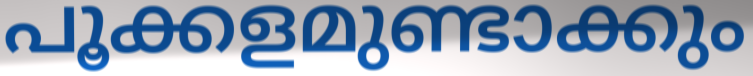
പൂക്കളമുണ്ടാക്കും